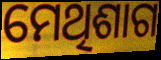
ମେଥିଶାଗ